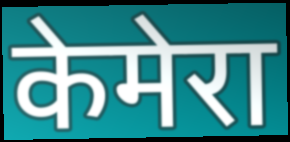
केमेरा